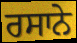
ਰਸਾਨੇ